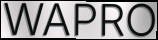
WAPRO